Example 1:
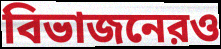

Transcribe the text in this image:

বিভাজনেরও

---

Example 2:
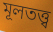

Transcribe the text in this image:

মূলতত্ত্ব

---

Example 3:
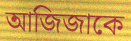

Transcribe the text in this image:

আজিজাকে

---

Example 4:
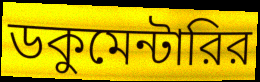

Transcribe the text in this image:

ডকুমেন্টারির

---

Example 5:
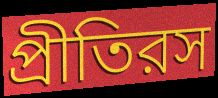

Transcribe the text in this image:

প্রীতিরস